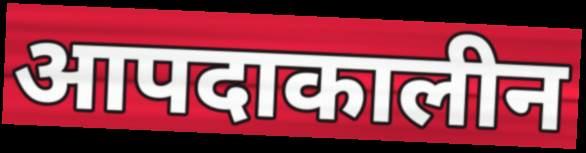
आपदाकालीन